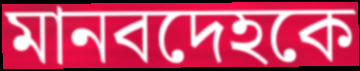
মানবদেহকে